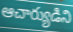
ఆచార్యుడిని